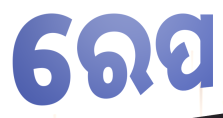
ରେପ